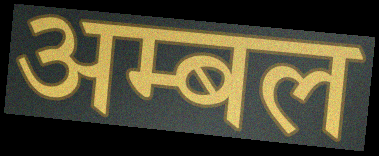
अम्बल